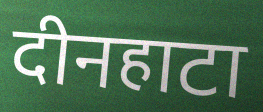
दीनहाटा